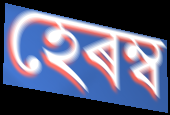
হেৰম্ব